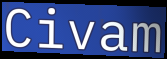
Civam